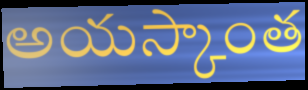
అయస్కాంత